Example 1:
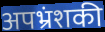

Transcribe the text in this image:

अपभ्रंशकी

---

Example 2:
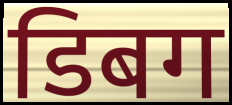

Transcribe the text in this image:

डिबग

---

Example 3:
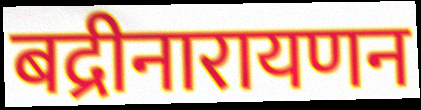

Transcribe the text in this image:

बद्रीनारायणन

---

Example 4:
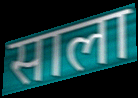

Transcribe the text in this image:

साला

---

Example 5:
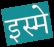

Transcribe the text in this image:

इस्मे